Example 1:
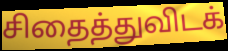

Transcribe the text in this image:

சிதைத்துவிடக்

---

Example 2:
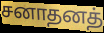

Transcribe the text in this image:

சனாதனத்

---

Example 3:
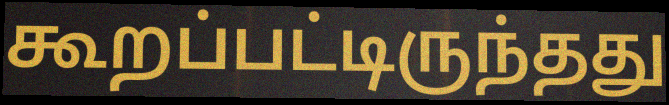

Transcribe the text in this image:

கூறப்பட்டிருந்தது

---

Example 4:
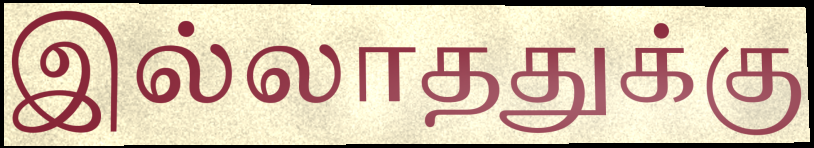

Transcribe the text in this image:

இல்லாததுக்கு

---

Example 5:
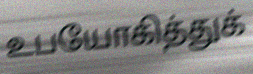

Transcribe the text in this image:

உபயோகித்துக்